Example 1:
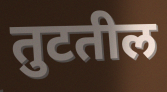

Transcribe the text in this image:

तुटतील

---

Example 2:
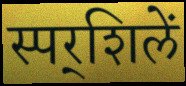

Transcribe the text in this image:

स्पर्शिलें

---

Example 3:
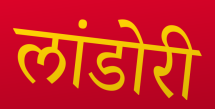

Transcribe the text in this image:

लांडोरी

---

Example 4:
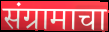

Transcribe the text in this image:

संग्रामाचा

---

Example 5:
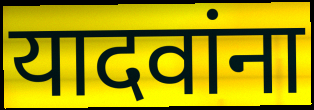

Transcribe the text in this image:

यादवांना